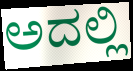
ಅದಲ್ಲಿ